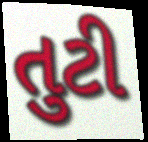
તુટી